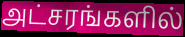
அட்சரங்களில்